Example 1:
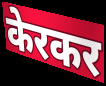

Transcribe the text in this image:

केरकर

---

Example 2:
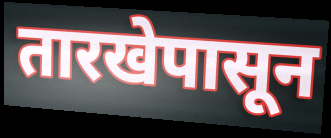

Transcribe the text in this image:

तारखेपासून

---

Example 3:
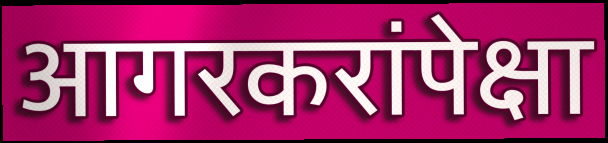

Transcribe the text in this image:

आगरकरांपेक्षा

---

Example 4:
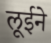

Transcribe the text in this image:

लूईने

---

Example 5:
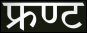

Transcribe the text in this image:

फ्रण्ट